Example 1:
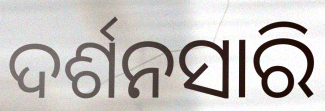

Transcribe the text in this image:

ଦର୍ଶନସାରି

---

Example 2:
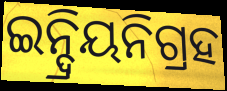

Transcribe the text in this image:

ଇନ୍ଦ୍ରିୟନିଗ୍ରହ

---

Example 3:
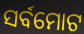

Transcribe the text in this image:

ସର୍ବମୋଟ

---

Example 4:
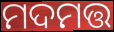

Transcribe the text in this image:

ମଦମତ୍ତ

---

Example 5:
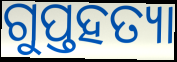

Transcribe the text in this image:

ଗୁପ୍ତହତ୍ୟା